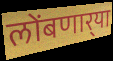
लोंबणार्‍या